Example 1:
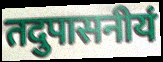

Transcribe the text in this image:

तदुपासनीयं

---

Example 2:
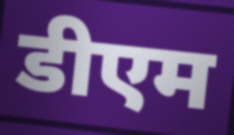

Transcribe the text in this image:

डीएम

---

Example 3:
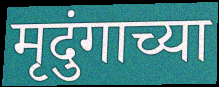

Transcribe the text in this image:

मृदुंगाच्या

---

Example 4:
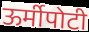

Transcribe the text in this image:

ऊर्मीपोटी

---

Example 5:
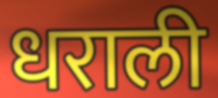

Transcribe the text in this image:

धराली